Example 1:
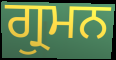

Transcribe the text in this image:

ਗ੍ਰੁਮਨ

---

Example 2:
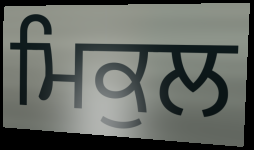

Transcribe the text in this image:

ਮਿਕੁਲ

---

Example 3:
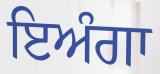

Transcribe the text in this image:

ਇਅੰਗਾ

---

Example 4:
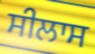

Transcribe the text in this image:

ਸੀਲਾਸ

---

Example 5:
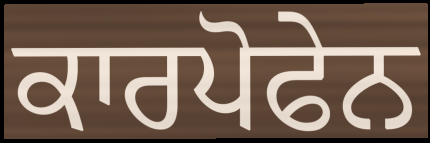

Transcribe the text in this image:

ਕਾਰਪੋਫੇਨ